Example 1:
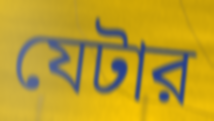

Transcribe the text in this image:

যেটার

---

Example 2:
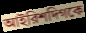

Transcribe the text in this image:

আইরিশদিগকে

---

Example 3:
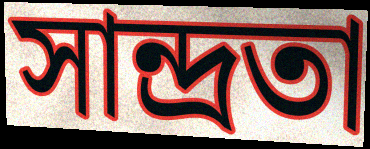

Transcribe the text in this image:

সান্দ্রতা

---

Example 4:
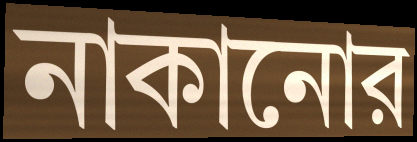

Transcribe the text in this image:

নাকানোর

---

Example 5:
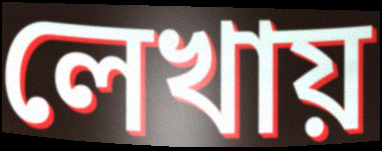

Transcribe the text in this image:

লেখায়